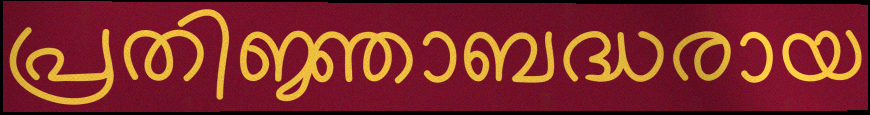
പ്രതിജ്ഞാബദ്ധരായ